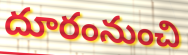
దూరంనుంచి